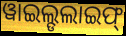
ୱାଇଲ୍ଡଲାଇଫ୍